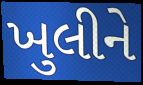
ખુલીને